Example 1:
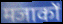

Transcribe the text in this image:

मजाकों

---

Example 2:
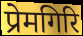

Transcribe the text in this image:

प्रेमगिरि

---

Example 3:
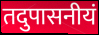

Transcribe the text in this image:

तदुपासनीयं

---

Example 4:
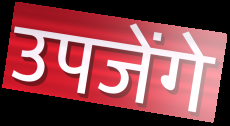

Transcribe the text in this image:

उपजेंगे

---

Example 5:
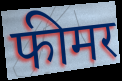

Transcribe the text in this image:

फीमर